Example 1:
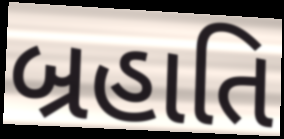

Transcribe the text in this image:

બ્રહાતિ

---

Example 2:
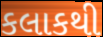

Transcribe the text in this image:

કલાકથી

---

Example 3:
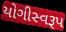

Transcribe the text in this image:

યોગીસ્વરૂપ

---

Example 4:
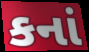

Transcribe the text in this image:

કનાં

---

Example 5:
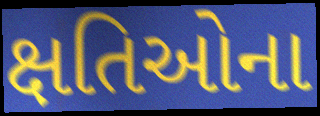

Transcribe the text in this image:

ક્ષતિઓના